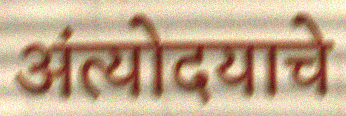
अंत्योदयाचे